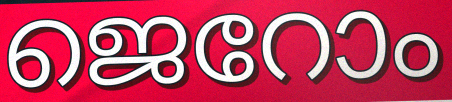
ജെറോം